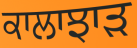
ਕਾਲਾਝਾਡ਼